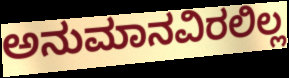
ಅನುಮಾನವಿರಲಿಲ್ಲ